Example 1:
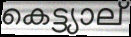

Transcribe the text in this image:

കെട്ട്യാല്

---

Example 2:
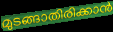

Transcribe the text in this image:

മുടങ്ങാതിരിക്കാൻ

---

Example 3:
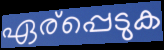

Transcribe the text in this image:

ഏര്പ്പെടുക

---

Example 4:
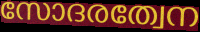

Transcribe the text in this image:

സോദരത്വേന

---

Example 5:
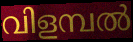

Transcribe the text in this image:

വിളമ്പൽ